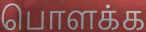
பொளக்க